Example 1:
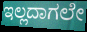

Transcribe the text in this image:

ಇಲ್ಲದಾಗಲೇ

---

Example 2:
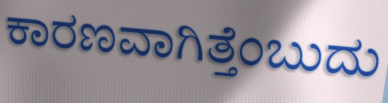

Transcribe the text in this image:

ಕಾರಣವಾಗಿತ್ತೆಂಬುದು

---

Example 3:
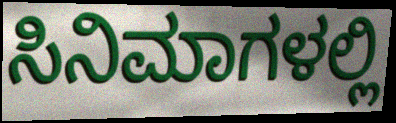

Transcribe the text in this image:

ಸಿನಿಮಾಗಳಲ್ಲಿ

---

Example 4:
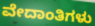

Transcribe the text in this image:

ವೇದಾಂತಿಗಳು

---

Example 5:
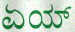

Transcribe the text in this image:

ಏಯ್